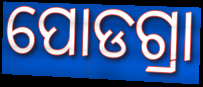
ପୋଡଗ୍ରା